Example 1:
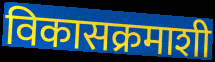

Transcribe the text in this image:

विकासक्रमाशी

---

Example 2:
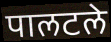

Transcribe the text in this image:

पालटले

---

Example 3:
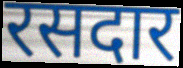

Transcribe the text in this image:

रसदार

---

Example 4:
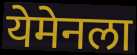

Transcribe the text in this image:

येमेनला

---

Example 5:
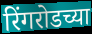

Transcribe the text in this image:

रिंगरोडच्या